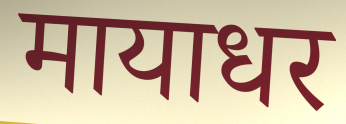
मायाधर